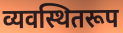
व्यवस्थितरूप